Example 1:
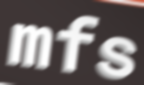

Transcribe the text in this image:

mfs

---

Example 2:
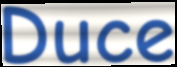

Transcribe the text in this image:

Duce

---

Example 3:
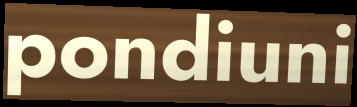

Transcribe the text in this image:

pondiuni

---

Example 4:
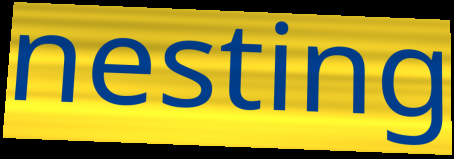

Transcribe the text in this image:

nesting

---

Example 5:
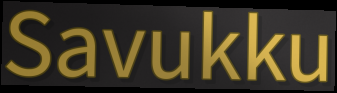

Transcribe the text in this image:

Savukku